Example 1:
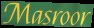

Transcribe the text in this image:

Masroor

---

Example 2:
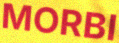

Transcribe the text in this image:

MORBI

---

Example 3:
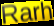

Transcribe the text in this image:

Rarh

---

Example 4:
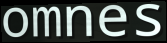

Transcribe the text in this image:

omnes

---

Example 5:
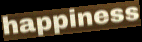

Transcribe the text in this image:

happiness